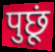
पुछूं